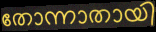
തോന്നാതായി